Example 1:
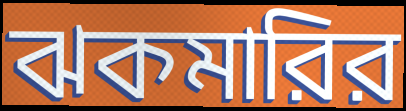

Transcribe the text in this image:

ঝকমারির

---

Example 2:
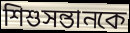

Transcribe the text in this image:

শিশুসন্তানকে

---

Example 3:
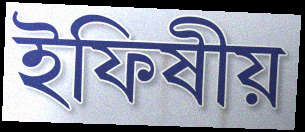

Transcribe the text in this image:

ইফিষীয়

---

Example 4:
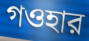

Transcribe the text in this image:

গওহার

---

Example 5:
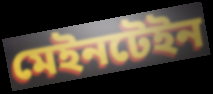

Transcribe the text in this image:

মেইনটেইন